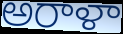
అరాళా